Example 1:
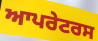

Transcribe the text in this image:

ਆਪਰੇਟਰਸ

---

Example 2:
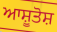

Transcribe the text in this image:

ਆਸ਼ੂਤੋਸ਼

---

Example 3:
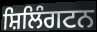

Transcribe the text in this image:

ਸ਼ਿਲਿੰਗਟਨ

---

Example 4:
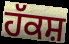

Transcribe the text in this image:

ਹੱਕਸ਼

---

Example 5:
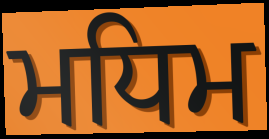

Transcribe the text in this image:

ਮਧਿਮ